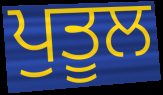
ਪੁਤੂਲ